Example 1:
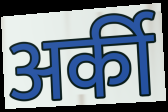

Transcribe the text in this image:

अर्की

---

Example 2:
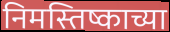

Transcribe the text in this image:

निमस्तिष्काच्या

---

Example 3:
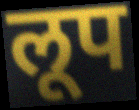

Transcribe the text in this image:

लूप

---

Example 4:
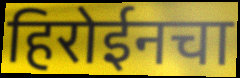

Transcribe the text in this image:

हिरोईनचा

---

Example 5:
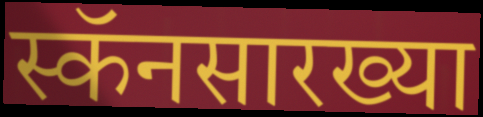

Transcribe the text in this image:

स्कॅनसारख्या